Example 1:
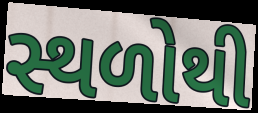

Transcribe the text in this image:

સ્થળોથી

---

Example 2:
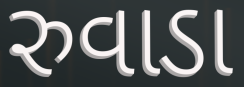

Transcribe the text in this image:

રુવાડા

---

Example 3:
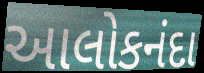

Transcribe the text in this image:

આલોકનંદા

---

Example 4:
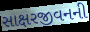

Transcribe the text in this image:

સાક્ષરજીવનની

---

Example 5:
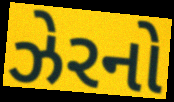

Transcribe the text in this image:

ઝેરનો